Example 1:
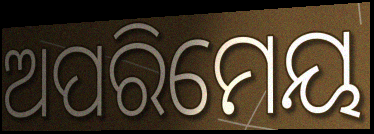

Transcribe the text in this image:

ଅପରିମେୟ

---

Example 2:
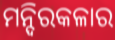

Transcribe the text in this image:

ମନ୍ଦିରକଳାର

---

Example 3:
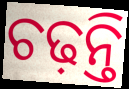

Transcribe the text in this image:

ଚଢ଼ନ୍ତି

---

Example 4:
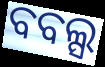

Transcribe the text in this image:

ବବଲ୍ସ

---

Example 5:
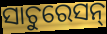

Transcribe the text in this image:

ସାଚୁରେସନ୍